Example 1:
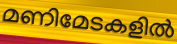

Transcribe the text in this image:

മണിമേടകളിൽ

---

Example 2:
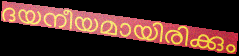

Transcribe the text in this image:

ദയനീയമായിരിക്കും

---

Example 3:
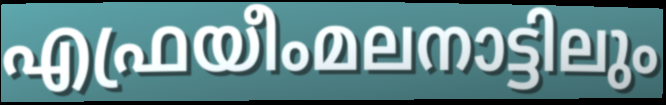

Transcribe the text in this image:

എഫ്രയീംമലനാട്ടിലും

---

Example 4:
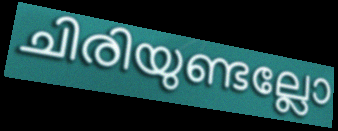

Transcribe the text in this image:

ചിരിയുണ്ടല്ലോ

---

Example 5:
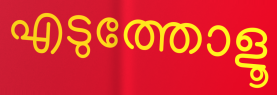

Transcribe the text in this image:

എടുത്തോളൂ